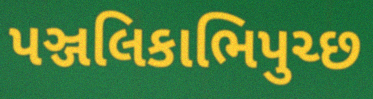
પઞ્જલિકાભિપુચ્છ